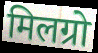
मिलग्रो